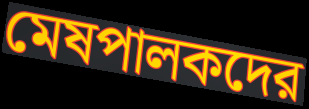
মেষপালকদের